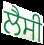
ਲੈਸੀ